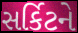
સર્કિટને